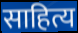
साहित्य